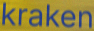
kraken